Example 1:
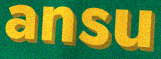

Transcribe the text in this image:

ansu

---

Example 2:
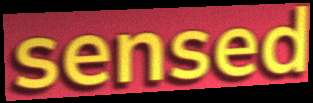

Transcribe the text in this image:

sensed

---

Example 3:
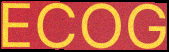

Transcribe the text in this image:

ECOG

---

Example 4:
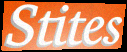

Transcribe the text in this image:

Stites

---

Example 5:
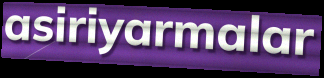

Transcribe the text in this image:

asiriyarmalar